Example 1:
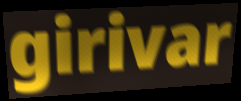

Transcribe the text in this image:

girivar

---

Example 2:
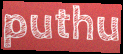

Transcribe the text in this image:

puthu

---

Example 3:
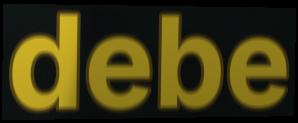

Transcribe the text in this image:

debe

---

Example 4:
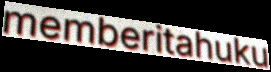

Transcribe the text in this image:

memberitahuku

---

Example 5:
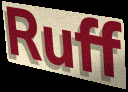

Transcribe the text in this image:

Ruff